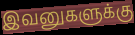
இவனுகளுக்கு